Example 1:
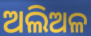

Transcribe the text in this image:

ଅଲିଅଳ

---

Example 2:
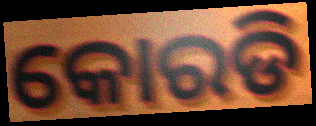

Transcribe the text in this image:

କୋରଡି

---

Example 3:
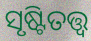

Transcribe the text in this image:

ସୃଷ୍ଟିତତ୍ତ୍ୱ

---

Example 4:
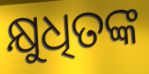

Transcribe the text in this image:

କ୍ଷୁଧିତଙ୍କ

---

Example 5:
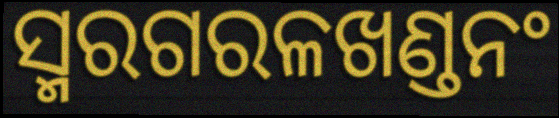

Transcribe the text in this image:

ସ୍ମରଗରଳଖଣ୍ଡନଂ